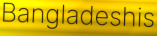
Bangladeshis